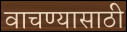
वाचण्यासाठी